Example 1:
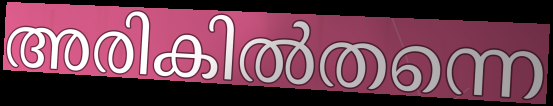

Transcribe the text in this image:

അരികിൽതന്നെ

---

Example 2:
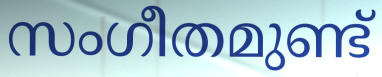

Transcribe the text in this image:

സംഗീതമുണ്ട്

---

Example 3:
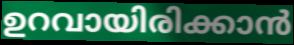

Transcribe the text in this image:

ഉറവായിരിക്കാൻ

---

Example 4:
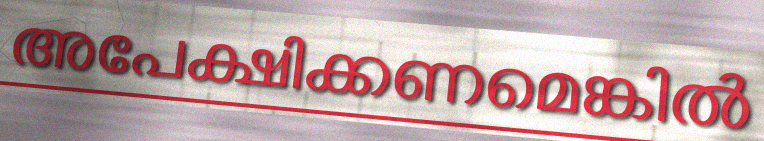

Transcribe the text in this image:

അപേക്ഷിക്കണമെങ്കിൽ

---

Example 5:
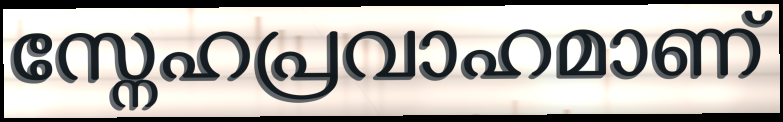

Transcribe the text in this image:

സ്നേഹപ്രവാഹമാണ്